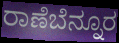
ರಾಣೆಬೆನ್ನೂರ